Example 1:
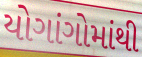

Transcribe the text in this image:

યોગાંગોમાંથી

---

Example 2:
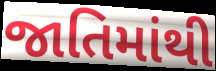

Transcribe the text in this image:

જાતિમાંથી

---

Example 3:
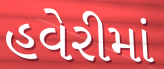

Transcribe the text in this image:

હવેરીમાં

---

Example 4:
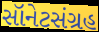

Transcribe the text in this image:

સૉનેટસંગ્રહ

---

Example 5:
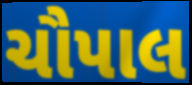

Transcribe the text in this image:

ચૌપાલ